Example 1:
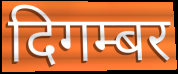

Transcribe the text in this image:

दिगम्बर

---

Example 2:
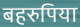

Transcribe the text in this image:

बहरुपिया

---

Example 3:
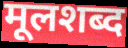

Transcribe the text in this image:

मूलशब्द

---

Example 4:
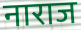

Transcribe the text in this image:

नाराज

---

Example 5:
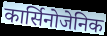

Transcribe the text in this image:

कार्सिनोजेनिक